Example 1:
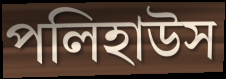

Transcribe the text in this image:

পলিহাউস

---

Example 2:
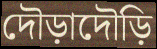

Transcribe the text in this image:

দৌড়াদৌড়ি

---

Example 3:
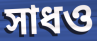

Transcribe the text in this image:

সাধও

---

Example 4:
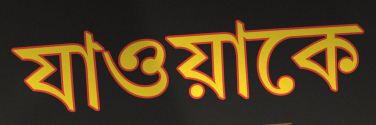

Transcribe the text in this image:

যাওয়াকে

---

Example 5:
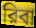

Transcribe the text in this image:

রিবা